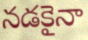
నడకైనా